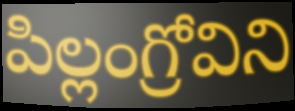
పిల్లంగ్రోవిని